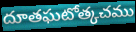
దూతఘటోత్కచము